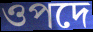
ওপদে